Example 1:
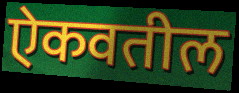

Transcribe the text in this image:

ऐकवतील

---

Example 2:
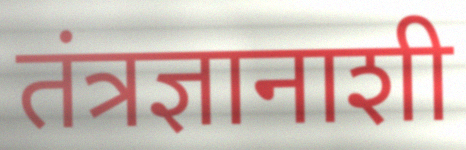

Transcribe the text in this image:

तंत्रज्ञानाशी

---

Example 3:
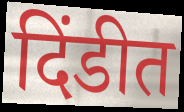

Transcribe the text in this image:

दिंडीत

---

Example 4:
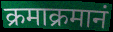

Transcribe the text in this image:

क्रमाक्रमानं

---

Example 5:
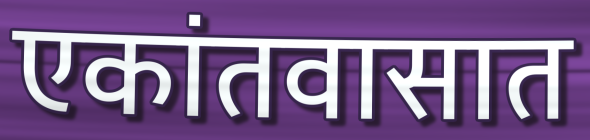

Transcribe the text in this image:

एकांतवासात